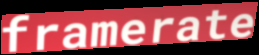
framerate